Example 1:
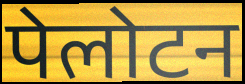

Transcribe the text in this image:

पेलोटन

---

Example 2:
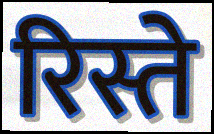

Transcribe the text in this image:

रिस्ते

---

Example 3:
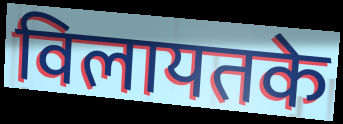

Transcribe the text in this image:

विलायतके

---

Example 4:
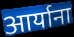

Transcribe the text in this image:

आर्याना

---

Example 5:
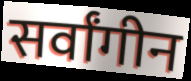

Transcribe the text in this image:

सर्वांगीन